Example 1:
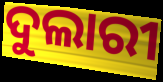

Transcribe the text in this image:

ଦୁଲାରୀ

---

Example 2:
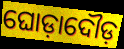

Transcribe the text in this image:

ଘୋଡ଼ାଦୌଡ଼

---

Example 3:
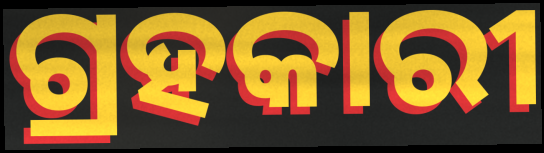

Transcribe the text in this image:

ଗ୍ରହକାରୀ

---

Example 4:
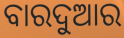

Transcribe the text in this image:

ବାରଦୁଆର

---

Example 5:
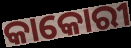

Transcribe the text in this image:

କାକୋରୀ